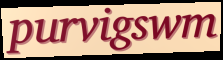
purvigswm